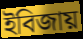
ইবিজায়